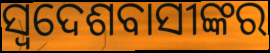
ସ୍ୱଦେଶବାସୀଙ୍କର